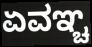
ಏವಞ್ಚ